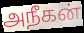
அநீகன்